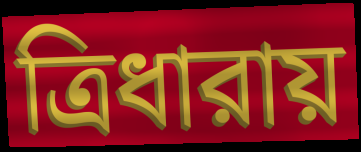
ত্রিধারায়